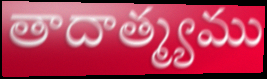
తాదాత్మ్యము